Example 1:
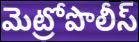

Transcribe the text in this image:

మెట్రోపొలీస్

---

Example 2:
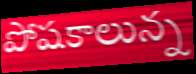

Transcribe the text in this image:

పోషకాలున్న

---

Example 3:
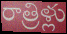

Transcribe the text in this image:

రాత్రిళ్లు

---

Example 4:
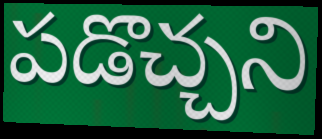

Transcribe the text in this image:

పడొచ్చని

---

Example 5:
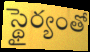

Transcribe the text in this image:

స్థైర్యంతో